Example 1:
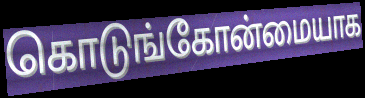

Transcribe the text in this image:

கொடுங்கோன்மையாக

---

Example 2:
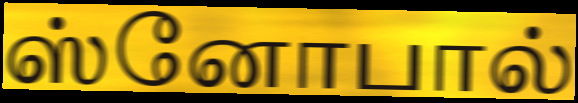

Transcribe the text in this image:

ஸ்னோபால்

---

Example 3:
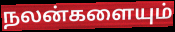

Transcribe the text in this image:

நலன்களையும்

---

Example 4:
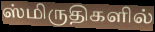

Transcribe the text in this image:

ஸ்மிருதிகளில்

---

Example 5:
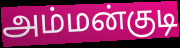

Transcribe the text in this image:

அம்மன்குடி